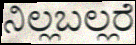
ನಿಲ್ಲಬಲ್ಲರೆ